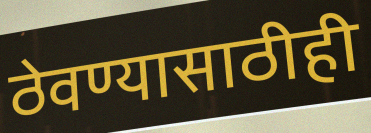
ठेवण्यासाठीही